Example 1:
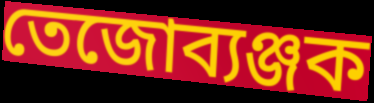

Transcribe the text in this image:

তেজোব্যঞ্জক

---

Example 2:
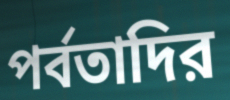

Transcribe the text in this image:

পর্বতাদির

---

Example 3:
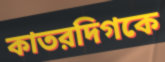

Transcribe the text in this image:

কাতরদিগকে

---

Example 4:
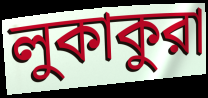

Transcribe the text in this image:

লুকাকুরা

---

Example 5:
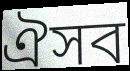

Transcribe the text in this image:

ঐসব